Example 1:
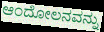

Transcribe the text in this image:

ಆಂದೋಲನವನ್ನು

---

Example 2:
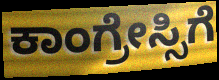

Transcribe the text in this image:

ಕಾಂಗ್ರೇಸ್ಸಿಗೆ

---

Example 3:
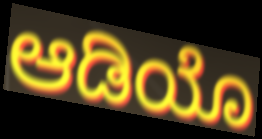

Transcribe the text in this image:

ಆಡಿಯೊ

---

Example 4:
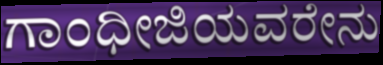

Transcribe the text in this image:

ಗಾಂಧೀಜಿಯವರೇನು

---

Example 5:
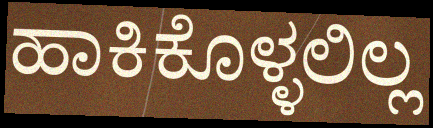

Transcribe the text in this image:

ಹಾಕಿಕೊಳ್ಳಲಿಲ್ಲ